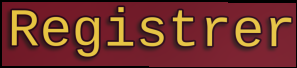
Registrer